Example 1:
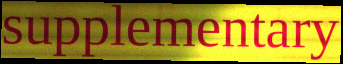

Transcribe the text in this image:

supplementary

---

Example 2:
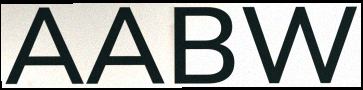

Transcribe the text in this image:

AABW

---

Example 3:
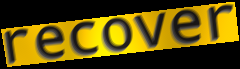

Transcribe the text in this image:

recover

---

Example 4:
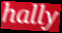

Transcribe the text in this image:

hally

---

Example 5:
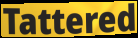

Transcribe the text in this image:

Tattered